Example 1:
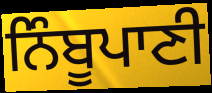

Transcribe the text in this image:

ਨਿੰਬੂਪਾਣੀ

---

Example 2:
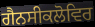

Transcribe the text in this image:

ਗੈਨਸੀਕਲੋਵਿਰ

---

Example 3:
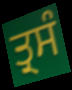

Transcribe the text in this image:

ਤ੍ਰਸੰ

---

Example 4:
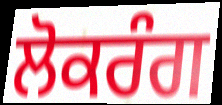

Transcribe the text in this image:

ਲੋਕਰੰਗ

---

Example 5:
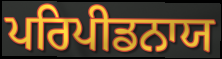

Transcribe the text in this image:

ਪਰਿਪੀਡਨਾਯ